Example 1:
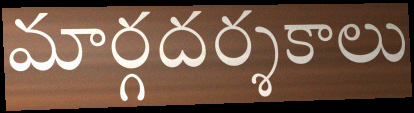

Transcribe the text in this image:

మార్గదర్శకాలు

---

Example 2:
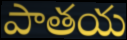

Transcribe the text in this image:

పాతయ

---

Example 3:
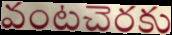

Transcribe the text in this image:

వంటచెరకు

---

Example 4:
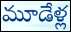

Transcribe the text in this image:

మూడేళ్ల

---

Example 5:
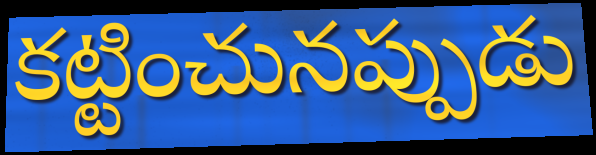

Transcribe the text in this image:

కట్టించునప్పుడు